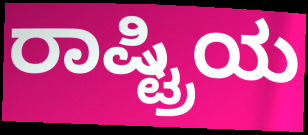
ರಾಷ್ಟ್ರಿಯ